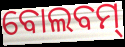
ବୋଲବମ୍